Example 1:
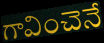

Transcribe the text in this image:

గావించెనే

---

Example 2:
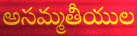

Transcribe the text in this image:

అసమ్మతీయుల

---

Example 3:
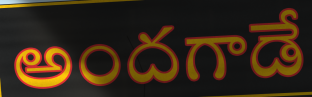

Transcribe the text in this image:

అందగాడే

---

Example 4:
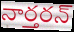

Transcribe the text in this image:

నార్తరన్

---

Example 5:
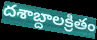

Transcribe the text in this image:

దశాబ్దాలక్రితం